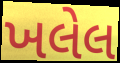
ખલેલ